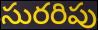
సురరిపు